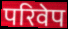
परिवेप